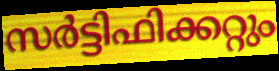
സർട്ടിഫിക്കറ്റും